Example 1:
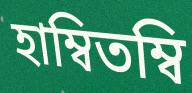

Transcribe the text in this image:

হাম্বিতম্বি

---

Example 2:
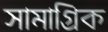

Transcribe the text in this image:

সামাগ্রিক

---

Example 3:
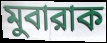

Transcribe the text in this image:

মুবারাক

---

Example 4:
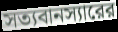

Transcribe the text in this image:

সত্যবানস্যারের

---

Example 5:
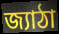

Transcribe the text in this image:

জ্যাঠা